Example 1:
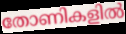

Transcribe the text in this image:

തോണികളിൽ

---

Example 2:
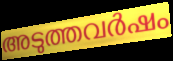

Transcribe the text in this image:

അടുത്തവർഷം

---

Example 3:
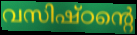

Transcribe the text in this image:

വസിഷ്ഠന്റെ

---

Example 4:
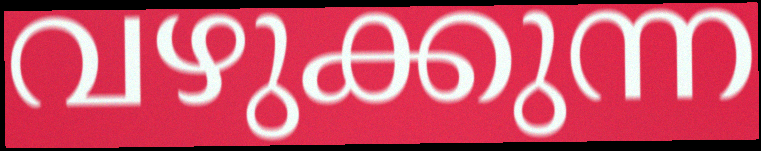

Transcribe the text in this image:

വഴുക്കുന്ന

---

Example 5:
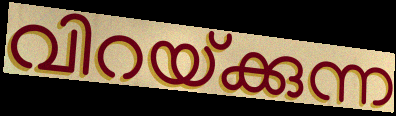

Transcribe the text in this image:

വിറയ്‌ക്കുന്ന